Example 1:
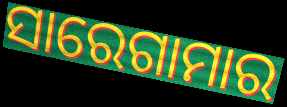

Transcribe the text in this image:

ସାରେଗାମାର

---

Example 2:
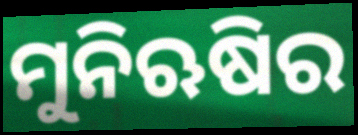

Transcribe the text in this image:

ମୁନିଋଷିର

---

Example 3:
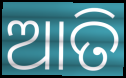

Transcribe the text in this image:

ଆତି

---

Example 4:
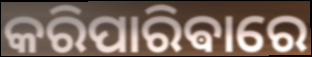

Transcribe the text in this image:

କରିପାରିଵାରେ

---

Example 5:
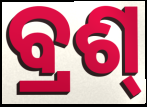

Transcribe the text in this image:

ବ୍ରଶ୍